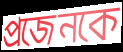
প্রজেনকে